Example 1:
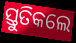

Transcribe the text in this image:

ସ୍ତୁତିକଲେ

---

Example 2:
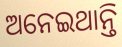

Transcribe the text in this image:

ଅନେଇଥାନ୍ତି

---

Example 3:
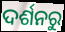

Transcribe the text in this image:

ଦର୍ଶନରୁ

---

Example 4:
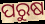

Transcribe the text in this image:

ପରୁଷ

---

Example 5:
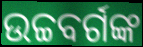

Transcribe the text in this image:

ଉଚ୍ଚବର୍ଗଙ୍କ